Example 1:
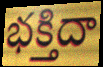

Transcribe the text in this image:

భక్తిదా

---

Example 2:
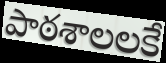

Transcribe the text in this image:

పాఠశాలలకే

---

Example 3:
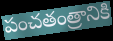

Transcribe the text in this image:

పంచతంత్రానికి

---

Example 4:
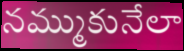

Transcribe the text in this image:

నమ్ముకునేలా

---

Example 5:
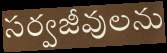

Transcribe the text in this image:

సర్వజీవులను